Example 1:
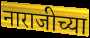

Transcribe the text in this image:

नाराजीच्या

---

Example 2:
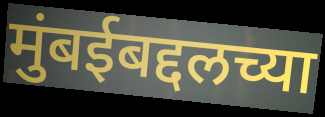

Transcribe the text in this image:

मुंबईबद्दलच्या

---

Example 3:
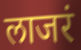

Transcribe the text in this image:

लाजरं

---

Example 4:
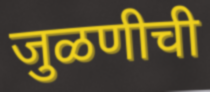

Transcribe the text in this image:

जुळणीची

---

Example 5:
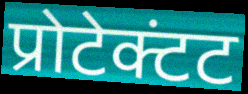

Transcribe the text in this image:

प्रोटेक्टंट